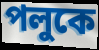
পলুকে